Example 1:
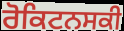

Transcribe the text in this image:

ਰੋਕਿਟਨਸਕੀ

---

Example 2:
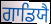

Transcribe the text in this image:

ਗਾਡਿਯੈ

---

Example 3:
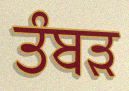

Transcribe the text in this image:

ਤੰਬੜ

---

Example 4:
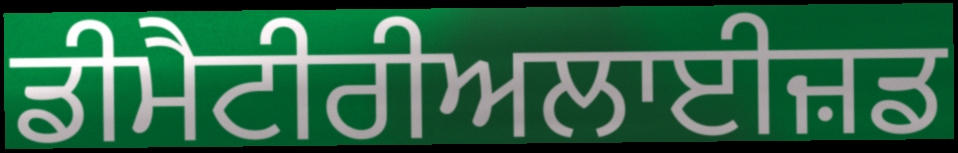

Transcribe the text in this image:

ਡੀਮੈਟੀਰੀਅਲਾਈਜ਼ਡ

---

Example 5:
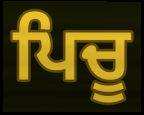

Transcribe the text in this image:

ਪਿਚੂ